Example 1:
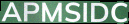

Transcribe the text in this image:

APMSIDC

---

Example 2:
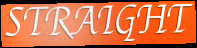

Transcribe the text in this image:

STRAIGHT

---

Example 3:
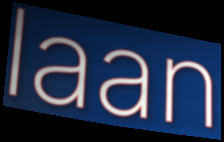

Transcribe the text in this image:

laan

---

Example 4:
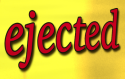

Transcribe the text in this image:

ejected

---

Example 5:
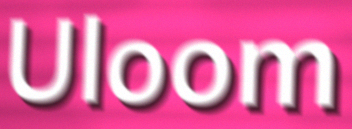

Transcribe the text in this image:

Uloom